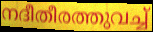
നദീതീരത്തുവച്ച്